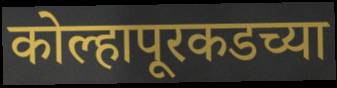
कोल्हापूरकडच्या